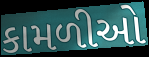
કામળીઓ